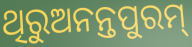
ଥିରୁଅନନ୍ତପୁରମ୍